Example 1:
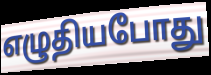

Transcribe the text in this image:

எழுதியபோது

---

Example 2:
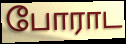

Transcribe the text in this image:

போராட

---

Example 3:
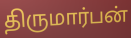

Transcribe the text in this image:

திருமார்பன்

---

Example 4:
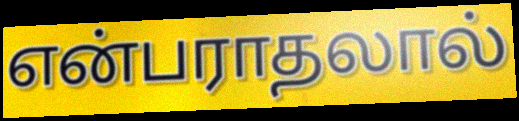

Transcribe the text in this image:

என்பராதலால்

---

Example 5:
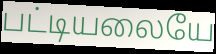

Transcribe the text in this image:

பட்டியலையே